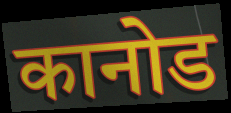
कानोड